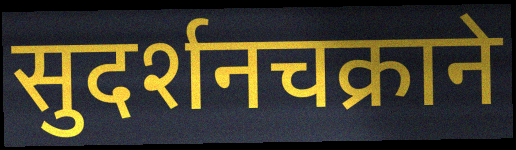
सुदर्शनचक्राने